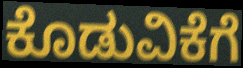
ಕೊಡುವಿಕೆಗೆ